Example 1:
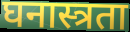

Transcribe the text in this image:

घनास्त्रता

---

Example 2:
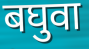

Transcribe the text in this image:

बघुवा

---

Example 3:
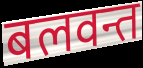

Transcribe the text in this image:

बलवन्‍त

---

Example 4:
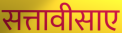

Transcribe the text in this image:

सत्तावीसाए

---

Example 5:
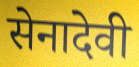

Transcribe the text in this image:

सेनादेवी